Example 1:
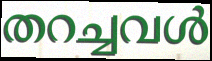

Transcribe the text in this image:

തറച്ചവൾ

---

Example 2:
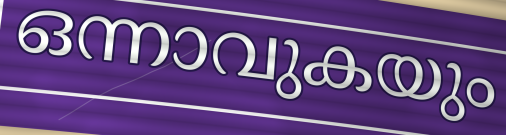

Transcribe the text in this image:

ഒന്നാവുകയും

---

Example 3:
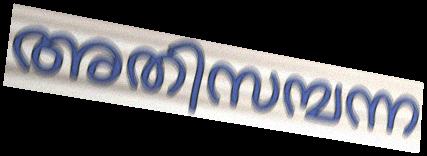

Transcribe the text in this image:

അതിസമ്പന്ന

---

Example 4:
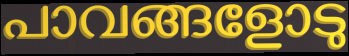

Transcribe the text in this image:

പാവങ്ങളോടു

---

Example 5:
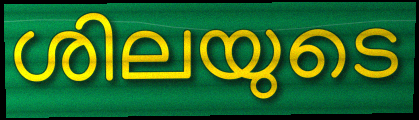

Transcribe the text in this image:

ശിലയുടെ